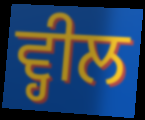
ਵ੍ਹੀਲ